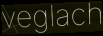
veglach